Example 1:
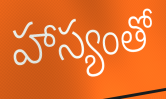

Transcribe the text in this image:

హాస్యంతో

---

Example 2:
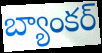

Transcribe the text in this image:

బ్యాంకర్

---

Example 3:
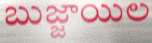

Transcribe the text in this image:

బుజ్జాయిల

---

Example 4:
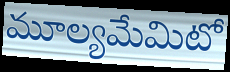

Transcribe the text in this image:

మూల్యమేమిటో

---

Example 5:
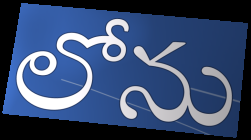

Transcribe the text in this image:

లోను